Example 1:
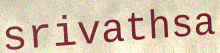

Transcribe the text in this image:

srivathsa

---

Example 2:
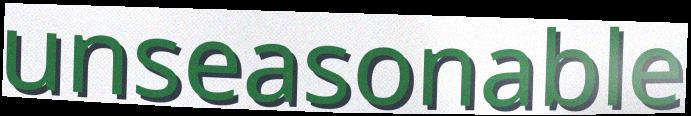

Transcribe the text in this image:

unseasonable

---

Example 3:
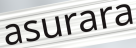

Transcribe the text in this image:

asurara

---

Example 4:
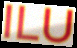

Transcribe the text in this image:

ILU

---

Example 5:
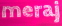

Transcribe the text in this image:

meraj